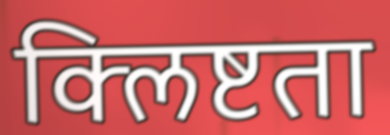
क्‍लिष्टता